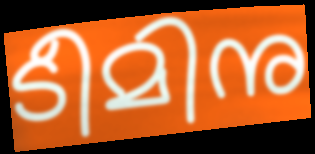
ടീമിനു